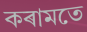
কৰামতে